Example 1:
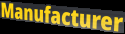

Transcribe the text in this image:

Manufacturer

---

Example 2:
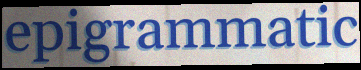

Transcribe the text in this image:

epigrammatic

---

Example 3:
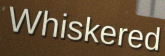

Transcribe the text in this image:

Whiskered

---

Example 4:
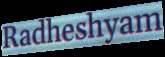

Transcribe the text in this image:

Radheshyam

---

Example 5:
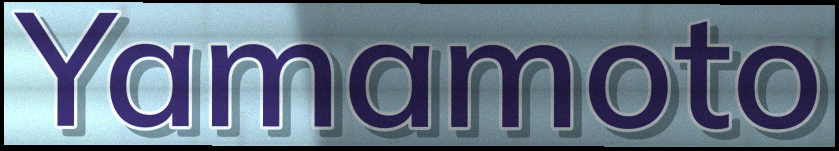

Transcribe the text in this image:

Yamamoto